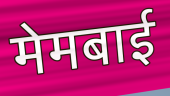
मेमबाई